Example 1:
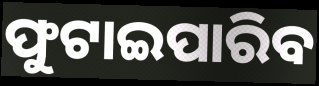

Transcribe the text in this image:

ଫୁଟାଇପାରିବ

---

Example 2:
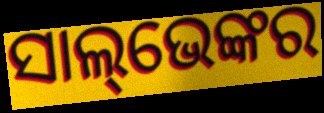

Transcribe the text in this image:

ସାଲ୍‌ଭେଙ୍କର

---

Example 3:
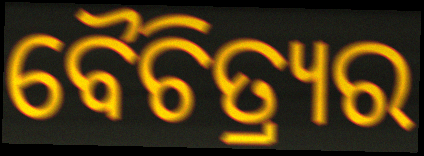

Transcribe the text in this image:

ବୈଚିତ୍ର୍ୟର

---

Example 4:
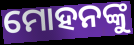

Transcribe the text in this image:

ମୋହନଙ୍କୁ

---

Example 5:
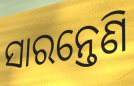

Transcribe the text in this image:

ସାରନ୍ତେଣି